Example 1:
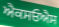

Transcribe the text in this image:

ਐਕਸਓਐਸ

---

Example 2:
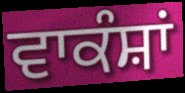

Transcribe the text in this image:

ਵਾਕੰਸ਼ਾਂ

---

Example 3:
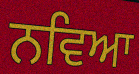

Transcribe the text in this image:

ਨਵਿਆ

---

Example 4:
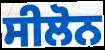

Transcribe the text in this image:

ਸੀਲੋਨ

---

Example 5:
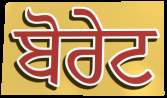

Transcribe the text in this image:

ਬੋਰੇਟ